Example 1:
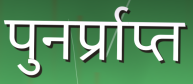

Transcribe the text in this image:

पुनर्प्राप्त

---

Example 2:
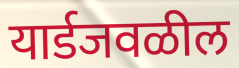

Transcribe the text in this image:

यार्डजवळील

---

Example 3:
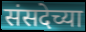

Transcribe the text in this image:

संसदेच्या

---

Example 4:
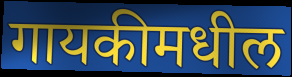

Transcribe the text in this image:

गायकीमधील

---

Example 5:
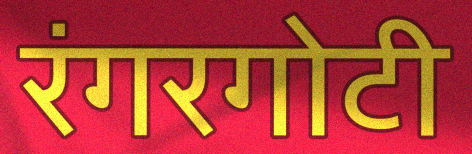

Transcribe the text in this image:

रंगरगोटी